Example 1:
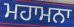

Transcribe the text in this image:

ਮਹਾਮਨਾ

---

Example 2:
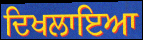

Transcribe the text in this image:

ਦਿਖਲਾਇਆ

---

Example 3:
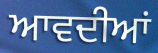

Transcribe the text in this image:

ਆਵਦੀਆਂ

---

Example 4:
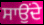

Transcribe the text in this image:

ਸਾਉਂਦੇ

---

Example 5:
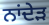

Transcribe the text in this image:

ਨਾਂਦੇੜ